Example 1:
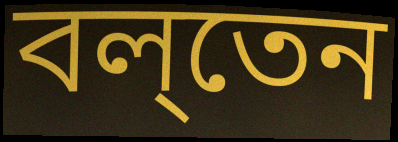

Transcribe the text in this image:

বল্‌তেন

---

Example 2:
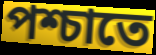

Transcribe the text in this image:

পশ্চাতে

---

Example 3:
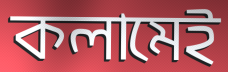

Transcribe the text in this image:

কলামেই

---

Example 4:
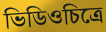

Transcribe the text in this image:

ভিডিওচিত্রে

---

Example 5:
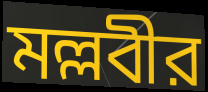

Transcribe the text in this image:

মল্লবীর